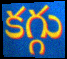
కగ్గు